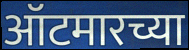
ऑटमारच्या